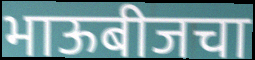
भाऊबीजचा